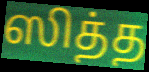
ஸித்த